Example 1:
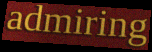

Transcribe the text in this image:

admiring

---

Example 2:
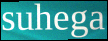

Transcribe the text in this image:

suhega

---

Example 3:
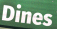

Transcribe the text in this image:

Dines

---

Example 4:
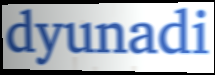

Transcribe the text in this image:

dyunadi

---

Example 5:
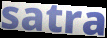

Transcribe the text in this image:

satra